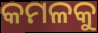
କମଳକୁ